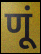
णूं